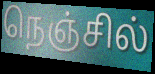
நெஞ்சில்